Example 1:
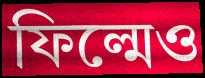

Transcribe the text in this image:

ফিল্মেও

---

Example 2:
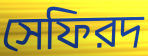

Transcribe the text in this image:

সেফিরদ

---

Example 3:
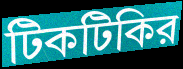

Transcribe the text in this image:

টিকটিকির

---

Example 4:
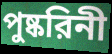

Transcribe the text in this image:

পুষ্করিনী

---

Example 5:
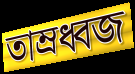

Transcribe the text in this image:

তাম্রধ্বজ